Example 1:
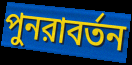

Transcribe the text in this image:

পুনরাবর্তন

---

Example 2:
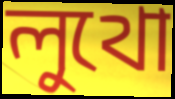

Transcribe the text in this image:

লুথো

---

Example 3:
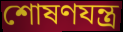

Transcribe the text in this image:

শোষণযন্ত্র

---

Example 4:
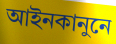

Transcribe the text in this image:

আইনকানুনে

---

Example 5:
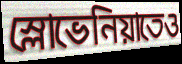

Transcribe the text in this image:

স্লোভেনিয়াতেও